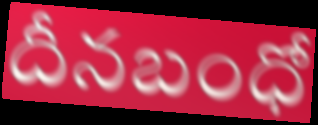
దీనబంధో